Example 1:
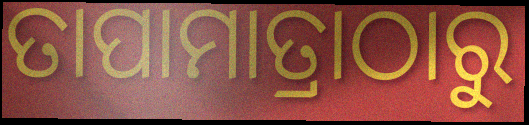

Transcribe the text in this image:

ତାପାମାତ୍ରାଠାରୁ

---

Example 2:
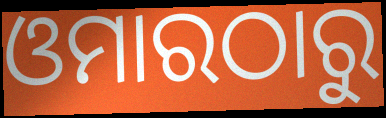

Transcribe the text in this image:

ଓମାରଠାରୁ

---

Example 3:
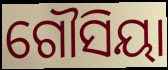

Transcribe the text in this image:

ଗୌସିୟା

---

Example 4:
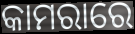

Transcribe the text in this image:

କାମରାରେ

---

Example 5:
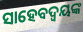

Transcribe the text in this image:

ସାହେବଦ୍ୱୟଙ୍କ